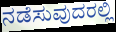
ನಡೆಸುವುದರಲ್ಲಿ